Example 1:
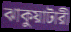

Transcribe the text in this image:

ঝাকুয়াটারী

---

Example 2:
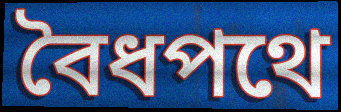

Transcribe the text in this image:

বৈধপথে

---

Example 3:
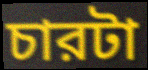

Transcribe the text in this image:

চারটা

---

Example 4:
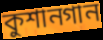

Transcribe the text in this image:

কুশানগান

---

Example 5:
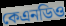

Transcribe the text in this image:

কেএনডিও